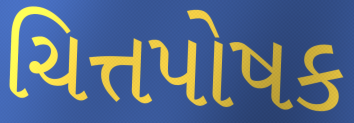
ચિત્તપોષક